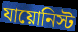
যায়োনিস্ট